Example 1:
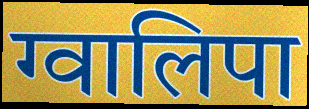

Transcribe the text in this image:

ग्वालिपा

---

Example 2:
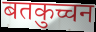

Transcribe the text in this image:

बतकुच्चन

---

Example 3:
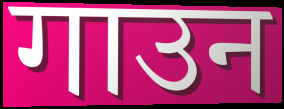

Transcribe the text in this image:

गाउन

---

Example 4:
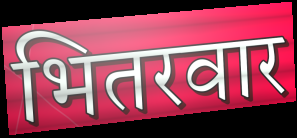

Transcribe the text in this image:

भितरवार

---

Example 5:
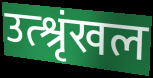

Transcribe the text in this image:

उत्श्रृंखल